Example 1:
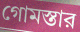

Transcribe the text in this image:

গোমস্তার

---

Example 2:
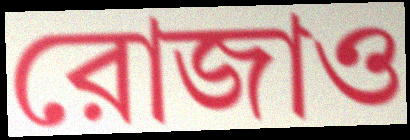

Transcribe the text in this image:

রোজাও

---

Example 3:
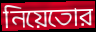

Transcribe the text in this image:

নিয়েতোর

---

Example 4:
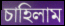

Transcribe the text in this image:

চাহিলাম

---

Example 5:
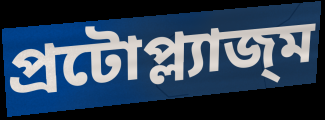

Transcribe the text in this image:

প্রটোপ্ল্যাজ্ম